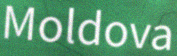
Moldova